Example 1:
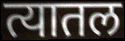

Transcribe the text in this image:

त्यातल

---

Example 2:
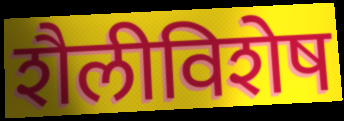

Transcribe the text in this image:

शैलीविशेष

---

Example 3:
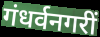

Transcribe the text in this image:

गंधर्वनगरीं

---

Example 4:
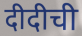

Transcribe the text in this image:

दीदीची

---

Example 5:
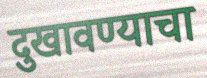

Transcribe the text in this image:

दुखावण्याचा